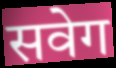
सवेग